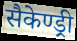
सैकेण्ड्री